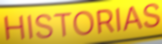
HISTORIAS